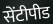
सेंटीपीड